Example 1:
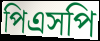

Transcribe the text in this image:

পিএসপি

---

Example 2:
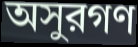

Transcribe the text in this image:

অসুরগণ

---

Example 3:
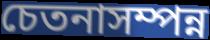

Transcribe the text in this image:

চেতনাসম্পন্ন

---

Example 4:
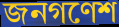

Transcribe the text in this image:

জনগণেশ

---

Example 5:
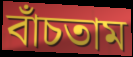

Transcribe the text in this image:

বাঁচতাম